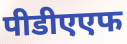
पीडीएएफ